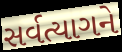
સર્વત્યાગને